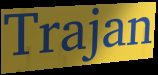
Trajan